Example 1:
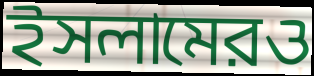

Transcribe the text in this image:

ইসলামেরও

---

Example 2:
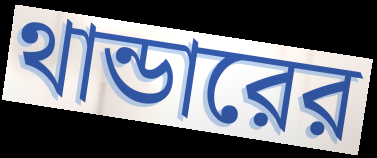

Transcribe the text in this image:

থান্ডারের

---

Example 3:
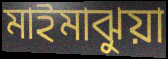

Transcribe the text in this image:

মাইমাঝুয়া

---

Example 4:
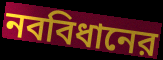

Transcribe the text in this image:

নববিধানের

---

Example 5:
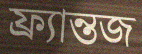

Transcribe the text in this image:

ফ্র্যান্তজ